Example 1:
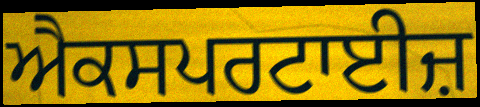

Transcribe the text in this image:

ਐਕਸਪਰਟਾਈਜ਼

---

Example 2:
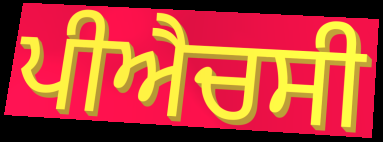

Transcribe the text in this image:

ਪੀਐਚਸੀ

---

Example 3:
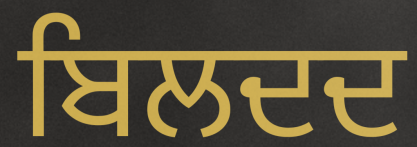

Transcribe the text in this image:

ਬਿਲਦਦ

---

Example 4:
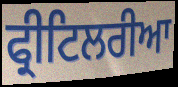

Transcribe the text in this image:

ਫ੍ਰੀਟਿਲਰੀਆ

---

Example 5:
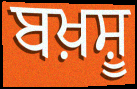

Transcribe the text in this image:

ਬਖ਼ਸ਼ੂ